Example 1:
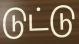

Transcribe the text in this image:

டுட்டு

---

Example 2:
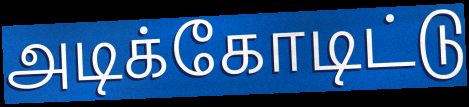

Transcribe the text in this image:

அடிக்கோடிட்டு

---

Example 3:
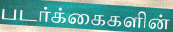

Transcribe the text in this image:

படர்க்கைகளின்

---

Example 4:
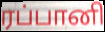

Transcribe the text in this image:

ரப்பானி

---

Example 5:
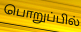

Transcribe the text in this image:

பொறுப்பில்